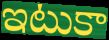
ఇటుకా